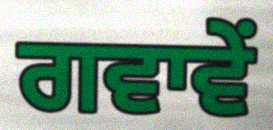
ਗਵਾਵੇਂ